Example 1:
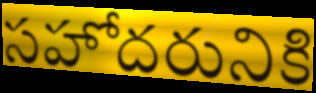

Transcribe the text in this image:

సహోదరునికి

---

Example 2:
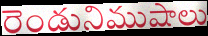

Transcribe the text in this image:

రెండునిముషాలు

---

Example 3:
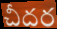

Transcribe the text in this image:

చీదర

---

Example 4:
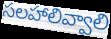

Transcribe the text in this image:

సలహాలివ్వాలి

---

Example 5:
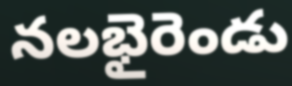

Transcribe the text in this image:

నలభైరెండు